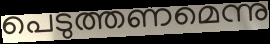
പെടുത്തണമെന്നു